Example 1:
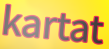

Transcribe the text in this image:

kartat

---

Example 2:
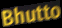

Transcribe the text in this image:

Bhutto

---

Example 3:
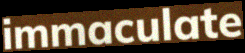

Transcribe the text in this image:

immaculate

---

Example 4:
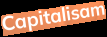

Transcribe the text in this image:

Capitalisam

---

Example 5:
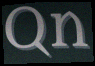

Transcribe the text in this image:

Qn